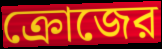
ক্রোজের